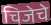
चिजेचे